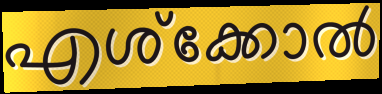
എശ്ക്കോൽ